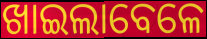
ଖାଇଲାବେଳେ